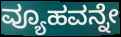
ವ್ಯೂಹವನ್ನೇ